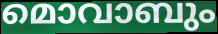
മൊവാബും